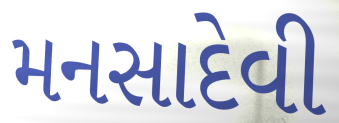
મનસાદેવી